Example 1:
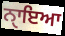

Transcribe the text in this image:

ਨੑਾਇਆ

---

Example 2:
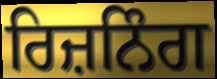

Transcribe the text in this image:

ਰਿਜ਼ਨਿੰਗ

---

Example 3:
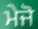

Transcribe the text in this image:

ਮੇਜੋ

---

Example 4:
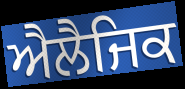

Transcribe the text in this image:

ਐਲੈਜਿਕ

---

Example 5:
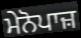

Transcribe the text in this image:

ਮੇਨੋਪਾਜ਼